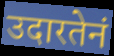
उदारतेनं